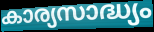
കാര്യസാദ്ധ്യം